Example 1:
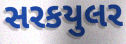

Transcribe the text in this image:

સરકયુલર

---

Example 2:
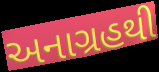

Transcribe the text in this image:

અનાગ્રહથી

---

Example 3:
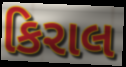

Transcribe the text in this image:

કિરાલ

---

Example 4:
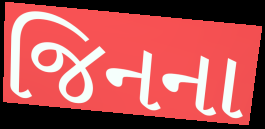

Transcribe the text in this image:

જિનના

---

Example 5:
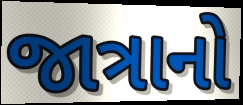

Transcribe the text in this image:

જાત્રાનો